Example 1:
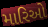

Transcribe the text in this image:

મારિઓ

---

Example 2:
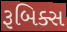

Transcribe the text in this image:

રૂબિક્સ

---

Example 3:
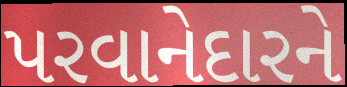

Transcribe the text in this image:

પરવાનેદારને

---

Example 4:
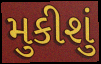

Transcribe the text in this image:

મુકીશું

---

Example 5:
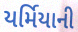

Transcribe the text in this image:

યર્મિયાની